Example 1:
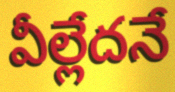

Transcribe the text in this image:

వీల్లేదనే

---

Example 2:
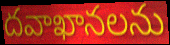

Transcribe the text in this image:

దవాఖానలను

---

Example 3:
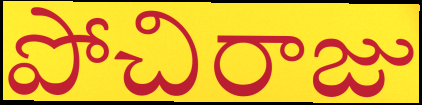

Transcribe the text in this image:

పోచిరాజు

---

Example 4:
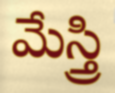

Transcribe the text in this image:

మేస్త్రి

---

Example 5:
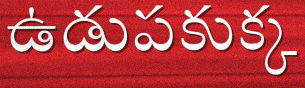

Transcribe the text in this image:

ఉడుపకుక్క